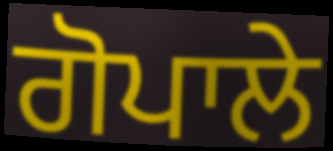
ਗੋਪਾਲੇ